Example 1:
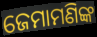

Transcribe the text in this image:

ଜେମାମଣିଙ୍କ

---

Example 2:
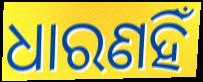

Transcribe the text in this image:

ଧାରଣହିଁ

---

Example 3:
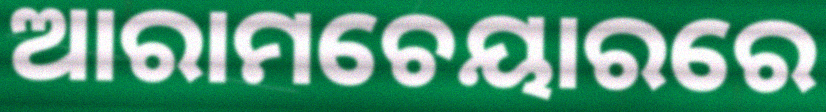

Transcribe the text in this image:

ଆରାମଚେୟାରରେ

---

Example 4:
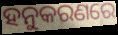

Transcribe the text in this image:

ହନୁକରଣରେ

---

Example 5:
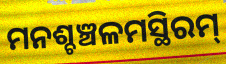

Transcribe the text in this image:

ମନଶ୍ଚଞ୍ଚଳମସ୍ଥିରମ୍